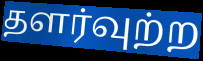
தளர்வுற்ற